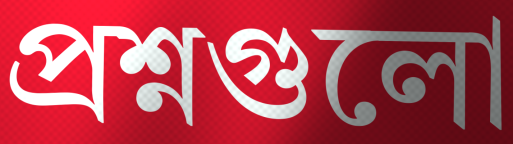
প্রশ্নগুলো